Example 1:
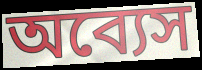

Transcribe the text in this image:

অব্যেস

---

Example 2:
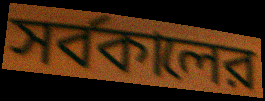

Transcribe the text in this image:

সর্বকালের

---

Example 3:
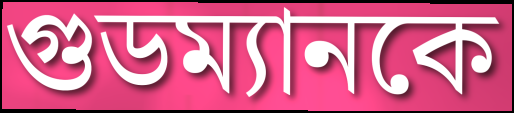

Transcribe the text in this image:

গুডম্যানকে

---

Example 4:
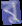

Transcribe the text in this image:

বু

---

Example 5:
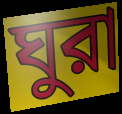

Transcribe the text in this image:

ঘুরা